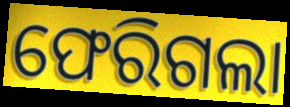
ଫେରିଗଲା